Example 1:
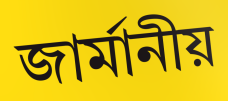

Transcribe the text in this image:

জার্মানীয়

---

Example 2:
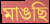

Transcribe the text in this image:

মাঙছি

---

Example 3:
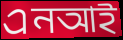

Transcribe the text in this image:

এনআই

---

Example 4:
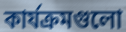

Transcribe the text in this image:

কার্যক্রমগুলো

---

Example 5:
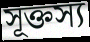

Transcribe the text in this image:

সূক্তস্য